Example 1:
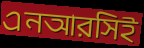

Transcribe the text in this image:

এনআরসিই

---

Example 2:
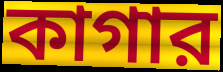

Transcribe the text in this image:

কাগার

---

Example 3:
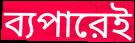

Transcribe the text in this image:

ব্যপারেই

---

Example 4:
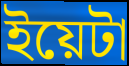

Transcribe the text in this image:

ইয়েটা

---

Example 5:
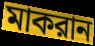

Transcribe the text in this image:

মাকরান